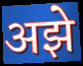
अझे